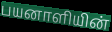
பயனாளியின்